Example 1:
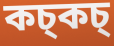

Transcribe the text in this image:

কচ্কচ্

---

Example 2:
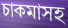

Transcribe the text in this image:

চাকমাসহ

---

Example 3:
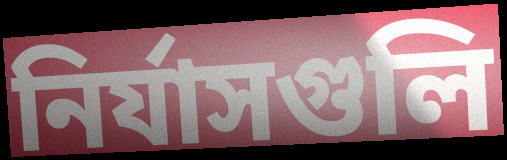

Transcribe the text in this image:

নির্যাসগুলি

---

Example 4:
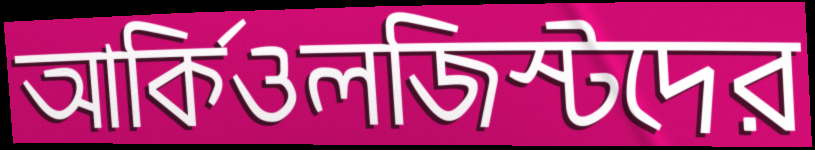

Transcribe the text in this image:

আর্কিওলজিস্টদের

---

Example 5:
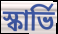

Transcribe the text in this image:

স্কার্ভি